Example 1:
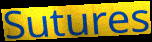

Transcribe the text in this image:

Sutures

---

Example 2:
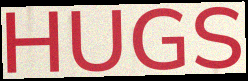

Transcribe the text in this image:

HUGS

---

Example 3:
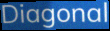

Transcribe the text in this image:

Diagonal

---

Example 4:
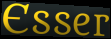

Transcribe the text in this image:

Esser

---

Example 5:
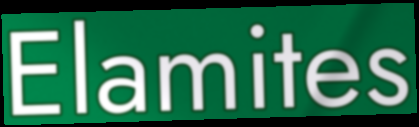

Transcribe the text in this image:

Elamites